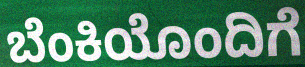
ಬೆಂಕಿಯೊಂದಿಗೆ